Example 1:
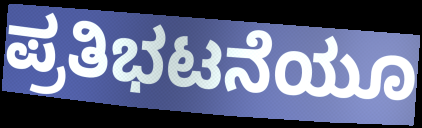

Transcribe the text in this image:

ಪ್ರತಿಭಟನೆಯೂ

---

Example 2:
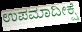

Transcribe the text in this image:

ಉಪಮಾದೀಕ್ಷೆ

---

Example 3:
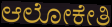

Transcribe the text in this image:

ಆಲೋಕೇತಿ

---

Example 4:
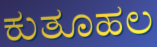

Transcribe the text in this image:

ಕುತೂಹಲ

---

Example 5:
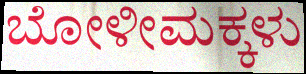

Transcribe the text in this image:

ಬೋಳೀಮಕ್ಕಳು